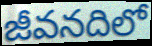
జీవనదిలో